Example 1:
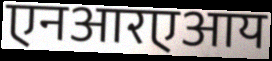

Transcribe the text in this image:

एनआरएआय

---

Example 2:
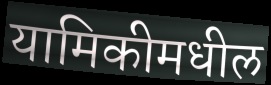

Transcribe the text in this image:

यामिकीमधील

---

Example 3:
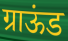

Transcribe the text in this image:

ग्राऊंड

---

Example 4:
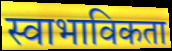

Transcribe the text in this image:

स्वाभाविकता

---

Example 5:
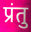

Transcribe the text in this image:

प्रंतु